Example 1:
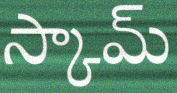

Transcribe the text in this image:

స్కామ్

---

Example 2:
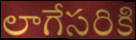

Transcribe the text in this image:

లాగేసరికి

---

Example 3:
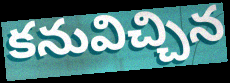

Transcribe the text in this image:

కనువిచ్చిన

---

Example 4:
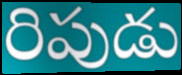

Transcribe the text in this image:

రిపుడు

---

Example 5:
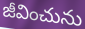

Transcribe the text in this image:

జీవించును